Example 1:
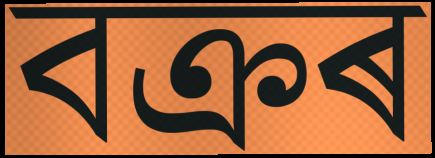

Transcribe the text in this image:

বক্ৰৰ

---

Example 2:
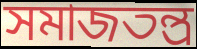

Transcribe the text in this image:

সমাজতন্ত্ৰ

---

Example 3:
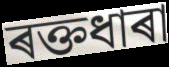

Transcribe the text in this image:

ৰক্তধাৰা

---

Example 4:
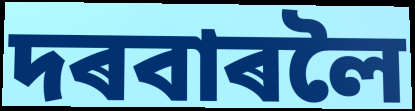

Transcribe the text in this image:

দৰবাৰলৈ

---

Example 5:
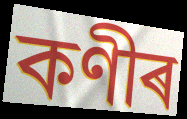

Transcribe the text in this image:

কণীৰ